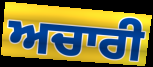
ਅਚਾਰੀ